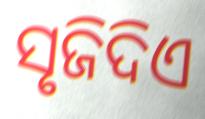
ସୃଜିଦିଏ